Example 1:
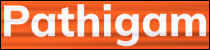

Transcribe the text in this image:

Pathigam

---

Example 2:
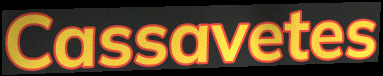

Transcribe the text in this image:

Cassavetes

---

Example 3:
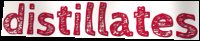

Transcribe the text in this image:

distillates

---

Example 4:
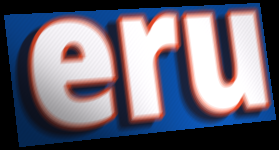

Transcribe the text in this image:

eru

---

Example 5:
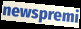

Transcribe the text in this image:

newspremi